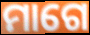
ମାଗେ